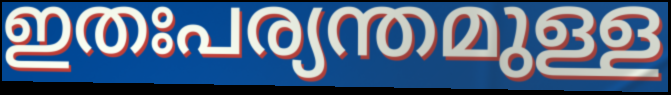
ഇതഃപര്യന്തമുള്ള